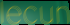
lecun